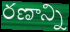
రణాన్ని